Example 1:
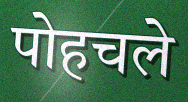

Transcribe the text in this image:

पोहचले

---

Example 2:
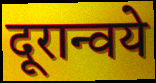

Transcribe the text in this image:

दूरान्वये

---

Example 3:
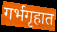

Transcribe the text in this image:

गर्भगृहात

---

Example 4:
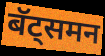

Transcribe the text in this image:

बॅट्समन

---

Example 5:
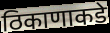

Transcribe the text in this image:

ठिकाणाकडे